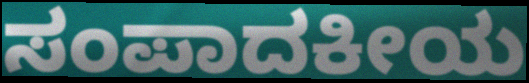
ಸಂಪಾದಕೀಯ